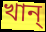
খান্